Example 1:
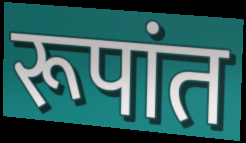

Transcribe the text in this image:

रूपांत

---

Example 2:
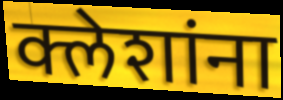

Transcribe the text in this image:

क्लेशांना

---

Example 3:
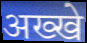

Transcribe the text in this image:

अख्खे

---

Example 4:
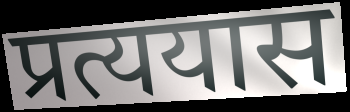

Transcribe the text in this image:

प्रत्ययास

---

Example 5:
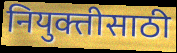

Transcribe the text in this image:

नियुक्तीसाठी